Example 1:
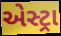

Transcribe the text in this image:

એસ્ટ્રા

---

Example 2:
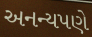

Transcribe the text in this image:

અનન્યપણે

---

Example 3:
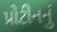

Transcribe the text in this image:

પ્રોટીનનું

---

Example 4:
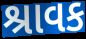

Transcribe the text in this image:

શ્રાવક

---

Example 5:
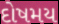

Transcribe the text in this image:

દોષમય